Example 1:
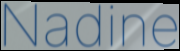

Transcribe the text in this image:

Nadine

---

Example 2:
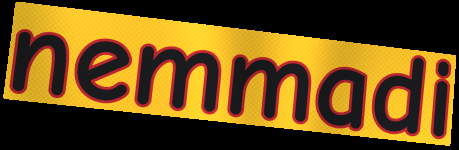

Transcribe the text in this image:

nemmadi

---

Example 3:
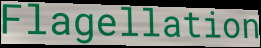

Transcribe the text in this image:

Flagellation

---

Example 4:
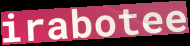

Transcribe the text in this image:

irabotee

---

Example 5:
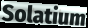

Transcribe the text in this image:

Solatium